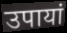
उपायां